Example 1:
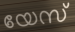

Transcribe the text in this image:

യേസ്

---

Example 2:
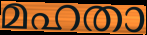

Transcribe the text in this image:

മഹതാ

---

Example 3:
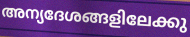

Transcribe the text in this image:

അന്യദേശങ്ങളിലേക്കു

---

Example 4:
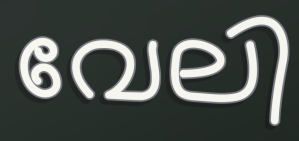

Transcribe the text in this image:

വേലി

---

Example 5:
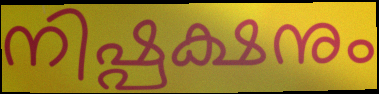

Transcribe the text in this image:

നിഷ്പക്ഷനും